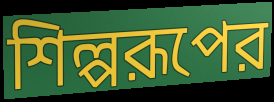
শিল্পরূপের